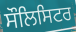
ਸੌਲਿਸਿਟਰ